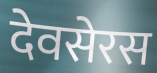
देवसेरस